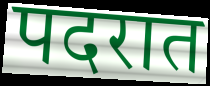
पदरात